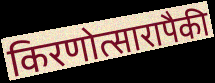
किरणोत्सारापैकी